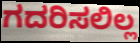
ಗದರಿಸಲಿಲ್ಲ